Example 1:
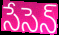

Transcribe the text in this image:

సేసెన్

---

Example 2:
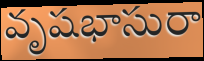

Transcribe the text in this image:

వృషభాసురా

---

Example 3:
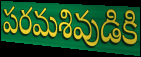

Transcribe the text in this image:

పరమశివుడికి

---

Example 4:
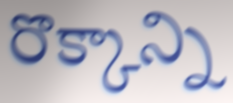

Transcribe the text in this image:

రొక్కాన్ని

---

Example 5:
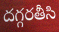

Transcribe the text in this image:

దగ్గరతీసి